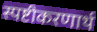
स्पष्टीकरणार्थ